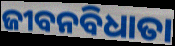
ଜୀବନବିଧାତା